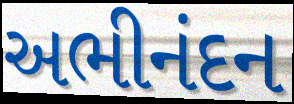
અભીનંદન